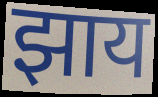
झाय